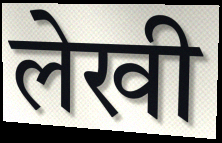
लेखी